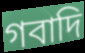
গবাদি